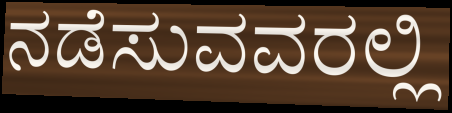
ನಡೆಸುವವರಲ್ಲಿ